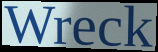
Wreck